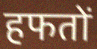
हफतों